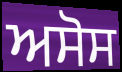
ਅਸੋਸ